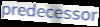
predecessor